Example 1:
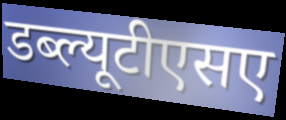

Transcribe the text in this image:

डब्ल्यूटीएसए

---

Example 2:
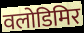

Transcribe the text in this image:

वलोडिमिर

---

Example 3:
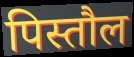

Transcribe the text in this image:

पिस्तौल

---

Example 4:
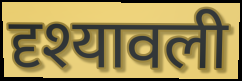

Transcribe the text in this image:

दृश्यावली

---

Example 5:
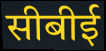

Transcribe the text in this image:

सीबीई